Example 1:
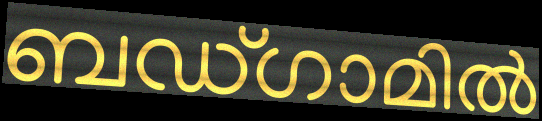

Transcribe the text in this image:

ബഡ്ഗാമിൽ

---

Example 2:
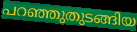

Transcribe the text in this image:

പറഞ്ഞുതുടങ്ങിയ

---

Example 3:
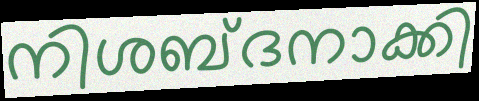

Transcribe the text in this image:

നിശബ്ദനാക്കി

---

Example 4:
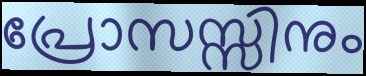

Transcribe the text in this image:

പ്രോസസ്സിനും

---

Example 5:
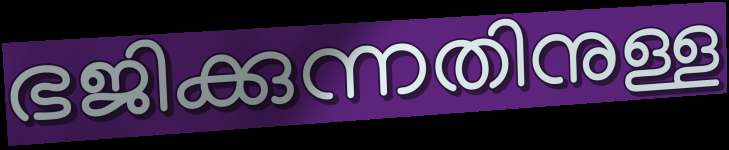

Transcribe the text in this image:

ഭജിക്കുന്നതിനുള്ള